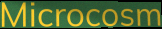
Microcosm